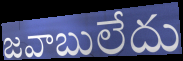
జవాబులేదు